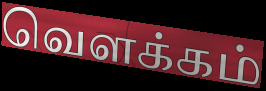
வெளக்கம்